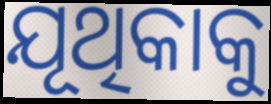
ଯୂଥିକାକୁ